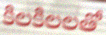
కిలకిలలతో